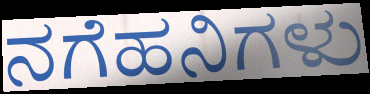
ನಗೆಹನಿಗಳು